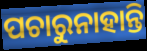
ପଚାରୁନାହାନ୍ତି